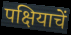
पक्षियाचें